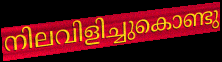
നിലവിളിച്ചുകൊണ്ടു